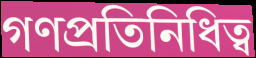
গণপ্রতিনিধিত্ব